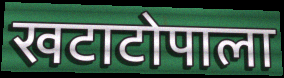
खटाटोपाला